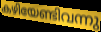
കഴിയേണ്ടിവന്നു